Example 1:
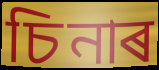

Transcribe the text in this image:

চিনাৰ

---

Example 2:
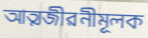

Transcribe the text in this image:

আত্মজীৱনীমূলক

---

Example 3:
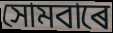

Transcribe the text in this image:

সোমবাৰে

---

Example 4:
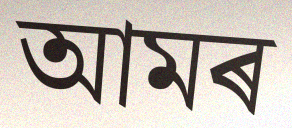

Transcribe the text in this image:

আমৰ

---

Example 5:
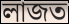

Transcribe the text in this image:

লাজত